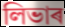
লিভাৰ